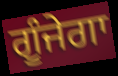
ਗੂੰਜੇਗਾ